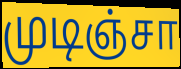
முடிஞ்சா